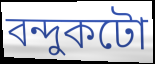
বন্দুকটো